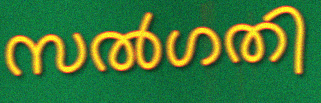
സൽഗതി